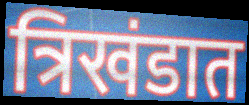
त्रिखंडात